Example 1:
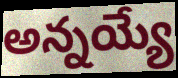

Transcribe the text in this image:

అన్నయ్యే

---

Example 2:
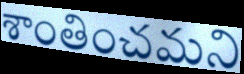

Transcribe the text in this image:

శాంతించమని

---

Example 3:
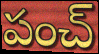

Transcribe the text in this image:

పంచ్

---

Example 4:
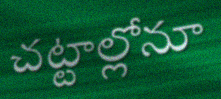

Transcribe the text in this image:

చట్టాల్లోనూ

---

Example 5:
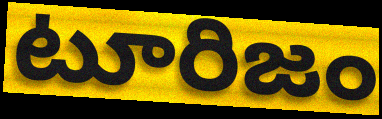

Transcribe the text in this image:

టూరిజం